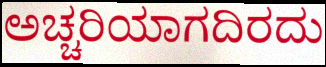
ಅಚ್ಚರಿಯಾಗದಿರದು